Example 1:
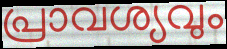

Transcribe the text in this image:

പ്രാവശ്യവും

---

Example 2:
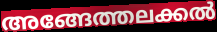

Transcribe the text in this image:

അങ്ങേത്തലക്കൽ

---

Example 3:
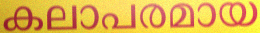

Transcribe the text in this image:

കലാപരമായ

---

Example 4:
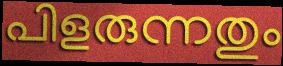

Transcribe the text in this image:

പിളരുന്നതും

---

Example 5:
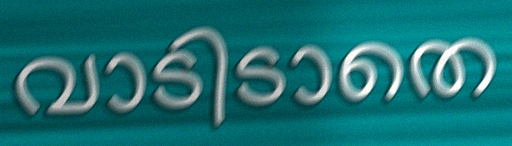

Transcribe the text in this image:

വാടിടാതെ